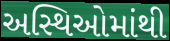
અસ્થિઓમાંથી